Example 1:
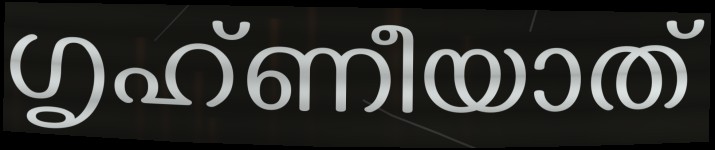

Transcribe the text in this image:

ഗൃഹ്ണീയാത്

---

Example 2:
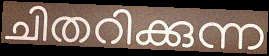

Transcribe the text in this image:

ചിതറിക്കുന്ന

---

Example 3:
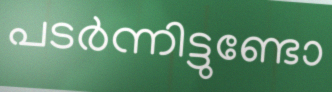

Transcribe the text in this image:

പടർന്നിട്ടുണ്ടോ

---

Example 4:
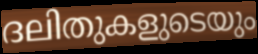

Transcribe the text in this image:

ദലിതുകളുടെയും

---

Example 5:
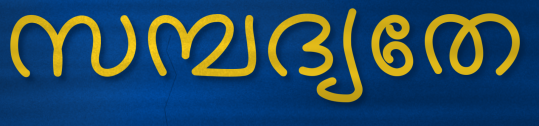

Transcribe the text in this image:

സമ്പദ്യതേ